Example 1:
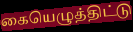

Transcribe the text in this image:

கையெழுத்திட்டு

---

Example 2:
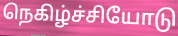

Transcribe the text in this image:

நெகிழ்ச்சியோடு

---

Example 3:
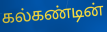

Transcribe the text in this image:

கல்கண்டின்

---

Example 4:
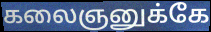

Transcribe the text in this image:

கலைஞனுக்கே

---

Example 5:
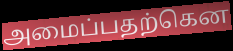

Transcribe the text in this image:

அமைப்பதற்கென